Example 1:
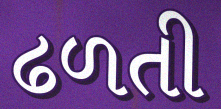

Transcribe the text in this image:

ઢળતી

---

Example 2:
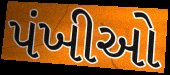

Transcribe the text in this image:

પંખીઓ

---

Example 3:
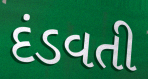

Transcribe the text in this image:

દંડવતી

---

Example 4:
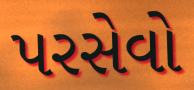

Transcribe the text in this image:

પરસેવો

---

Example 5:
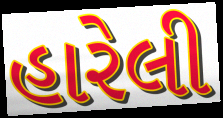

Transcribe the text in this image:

હારેલી